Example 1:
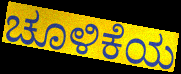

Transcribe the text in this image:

ಚೂಳಿಕೆಯ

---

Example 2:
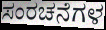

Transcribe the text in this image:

ಸಂರಚನೆಗಳ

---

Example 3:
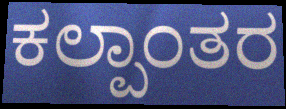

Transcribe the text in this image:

ಕಲ್ಪಾಂತರ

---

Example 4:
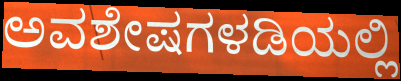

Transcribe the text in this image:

ಅವಶೇಷಗಳಡಿಯಲ್ಲಿ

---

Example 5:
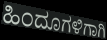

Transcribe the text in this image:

ಹಿಂದೂಗಳಿಗಾಗಿ